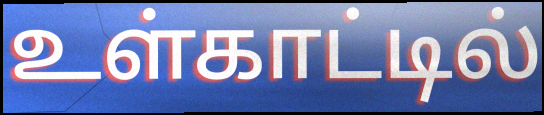
உள்காட்டில்